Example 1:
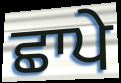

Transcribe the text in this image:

ਛਾਪੇ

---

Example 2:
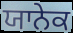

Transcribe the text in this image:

ਯਾਨੇਕ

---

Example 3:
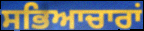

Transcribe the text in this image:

ਸਭਿਆਚਾਰਾਂ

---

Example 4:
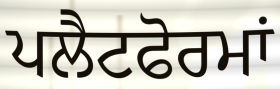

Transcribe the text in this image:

ਪਲੈਟਫੋਰਮਾਂ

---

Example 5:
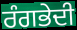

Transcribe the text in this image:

ਰੰਗਭੇਦੀ